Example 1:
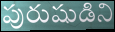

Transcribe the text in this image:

పురుషుడిని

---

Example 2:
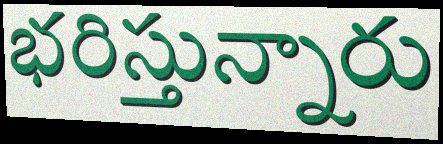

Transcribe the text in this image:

భరిస్తున్నారు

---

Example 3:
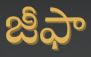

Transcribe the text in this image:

జీఫా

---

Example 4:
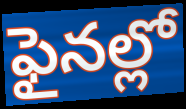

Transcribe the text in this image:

ఫైనల్లో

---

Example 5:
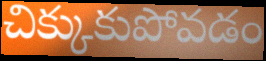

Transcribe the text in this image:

చిక్కుకుపోవడం